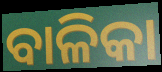
ବାଳିକା